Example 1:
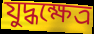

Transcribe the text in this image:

যুদ্ধক্ষেত্র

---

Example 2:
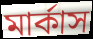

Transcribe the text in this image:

মার্কাস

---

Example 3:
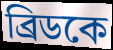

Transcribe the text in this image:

ব্রিডকে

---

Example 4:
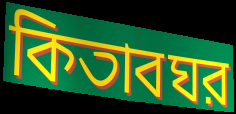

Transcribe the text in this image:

কিতাবঘর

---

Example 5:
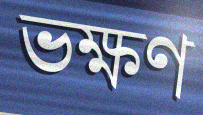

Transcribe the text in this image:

ভক্ষণ